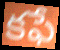
కఫే